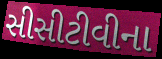
સીસીટીવીના